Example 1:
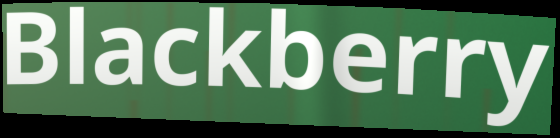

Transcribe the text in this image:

Blackberry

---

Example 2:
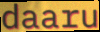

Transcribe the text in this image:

daaru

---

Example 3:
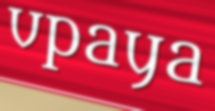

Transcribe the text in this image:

upaya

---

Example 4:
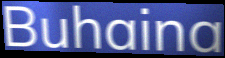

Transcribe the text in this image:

Buhaina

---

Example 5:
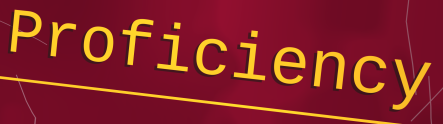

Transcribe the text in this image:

Proficiency